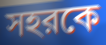
সহরকে